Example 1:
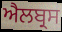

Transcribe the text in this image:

ਐਲਬ੍ਰਸ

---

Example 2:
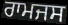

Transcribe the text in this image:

ਰਾਮਜਸ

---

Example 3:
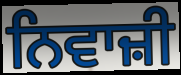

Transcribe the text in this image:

ਨਿਵਾਜ਼ੀ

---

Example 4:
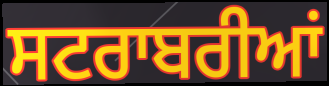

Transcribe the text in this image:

ਸਟਰਾਬਰੀਆਂ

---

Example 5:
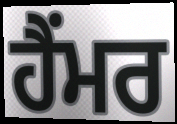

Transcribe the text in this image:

ਹੈਂਮਰ